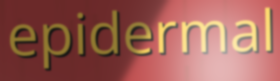
epidermal